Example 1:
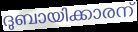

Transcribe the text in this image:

ദുബായിക്കാരന്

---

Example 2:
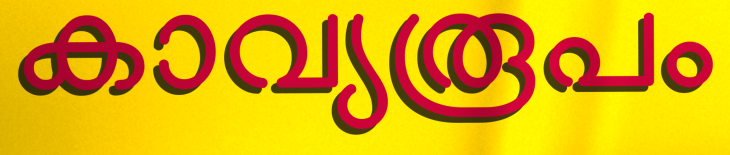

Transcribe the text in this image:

കാവ്യരൂപം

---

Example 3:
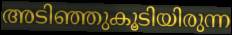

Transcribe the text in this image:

അടിഞ്ഞുകൂടിയിരുന്ന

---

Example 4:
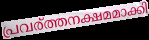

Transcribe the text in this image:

പ്രവര്ത്തനക്ഷമമാക്കി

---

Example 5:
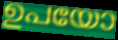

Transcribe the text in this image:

ഉപയോ